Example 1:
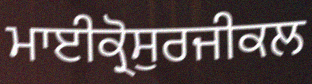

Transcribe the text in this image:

ਮਾਈਕ੍ਰੋਸੁਰਜੀਕਲ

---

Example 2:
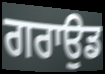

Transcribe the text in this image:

ਗਰਾਉਡ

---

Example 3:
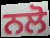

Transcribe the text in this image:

ਨਲੋ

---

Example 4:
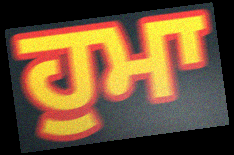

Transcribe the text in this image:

ਹੁਮਾ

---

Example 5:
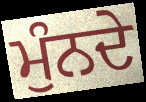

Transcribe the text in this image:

ਮੁੰਨਦੇ